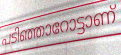
പടിഞ്ഞാറോട്ടാണ്